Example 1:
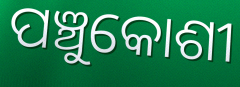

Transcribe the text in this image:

ପଞ୍ଚୁକୋଶୀ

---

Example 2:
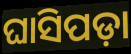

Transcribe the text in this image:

ଘାସିପଡ଼ା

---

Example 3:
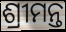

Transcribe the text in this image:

ଶ୍ରୀମନ୍ତ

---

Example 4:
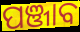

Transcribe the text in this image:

ପଞ୍ଜାବ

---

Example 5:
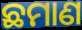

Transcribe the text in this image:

ଛମାଣ